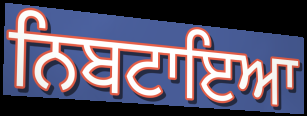
ਨਿਬਟਾਇਆ